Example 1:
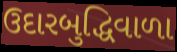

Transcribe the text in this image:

ઉદારબુદ્ધિવાળા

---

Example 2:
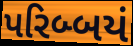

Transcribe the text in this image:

પરિબ્બયં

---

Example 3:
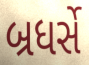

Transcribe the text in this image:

બ્રધર્સે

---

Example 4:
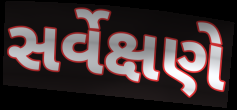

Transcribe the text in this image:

સર્વેક્ષણે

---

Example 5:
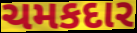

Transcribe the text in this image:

ચમકદાર